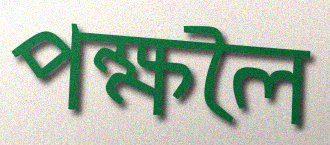
পক্ষলৈ